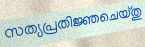
സത്യപ്രതിജ്ഞചെയ്തു